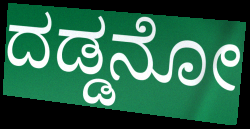
ದಡ್ಡನೋ